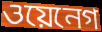
ওয়েনেগ